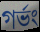
গর্ভং